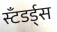
स्टँडर्ड्स